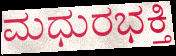
ಮಧುರಭಕ್ತಿ